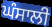
ਘੰਸਾਲੀ